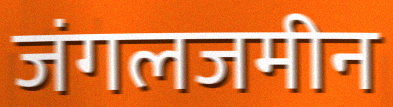
जंगलजमीन